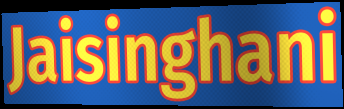
Jaisinghani